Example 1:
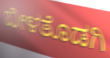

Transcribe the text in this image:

ಬೀಳತೊಡಗಿ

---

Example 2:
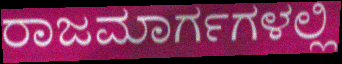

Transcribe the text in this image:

ರಾಜಮಾರ್ಗಗಳಲ್ಲಿ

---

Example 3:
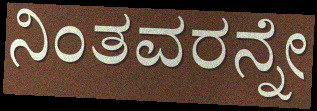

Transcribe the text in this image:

ನಿಂತವರನ್ನೇ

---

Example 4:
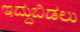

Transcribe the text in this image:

ಇದ್ದುಬಿಡಲು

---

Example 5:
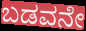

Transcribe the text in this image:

ಬಡವನೇ